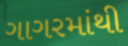
ગાગરમાંથી